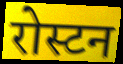
रोस्टन